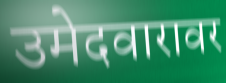
उमेदवारावर